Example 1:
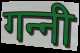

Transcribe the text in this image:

गन्नी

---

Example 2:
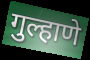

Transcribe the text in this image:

गुल्हाणे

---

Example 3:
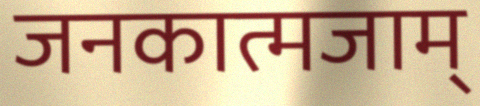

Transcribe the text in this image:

जनकात्मजाम्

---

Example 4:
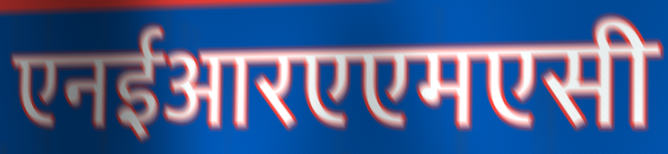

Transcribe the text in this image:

एनईआरएएमएसी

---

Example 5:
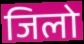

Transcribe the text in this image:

जिलो